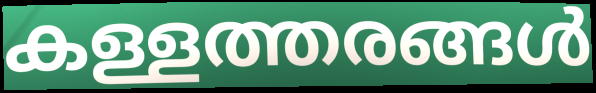
കള്ളത്തരങ്ങൾ